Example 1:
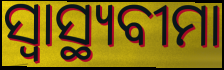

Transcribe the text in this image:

ସ୍ଵାସ୍ଥ୍ୟବୀମା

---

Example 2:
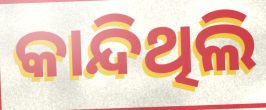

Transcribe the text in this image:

କାନ୍ଦିଥିଲି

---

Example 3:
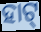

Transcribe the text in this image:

ହାଟ୍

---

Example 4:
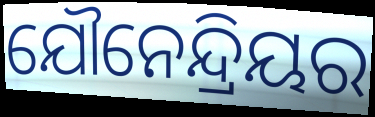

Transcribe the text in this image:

ଯୌନେନ୍ଦ୍ରିୟର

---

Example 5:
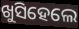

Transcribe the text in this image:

ଖୁସିହେଲେ